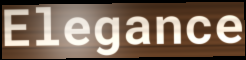
Elegance